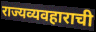
राज्यव्यवहाराची